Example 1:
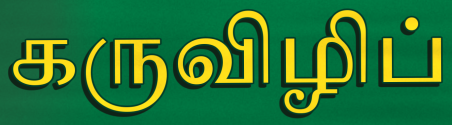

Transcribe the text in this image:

கருவிழிப்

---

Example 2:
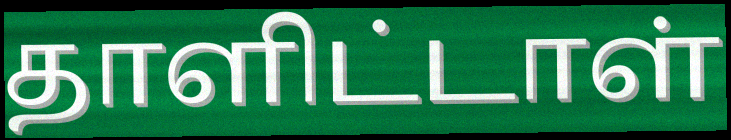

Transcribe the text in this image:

தாளிட்டாள்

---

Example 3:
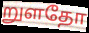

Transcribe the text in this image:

றுளதோ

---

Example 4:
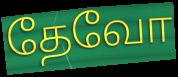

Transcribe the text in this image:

தேவோ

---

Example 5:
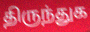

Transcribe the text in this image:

திருந்துக